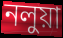
নলুয়া